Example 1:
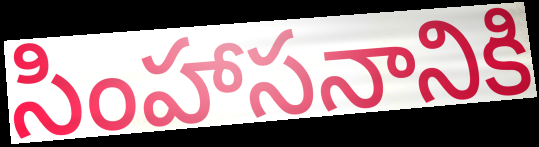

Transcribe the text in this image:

సింహాసనానికి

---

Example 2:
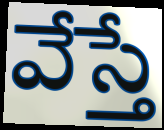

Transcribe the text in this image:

వేస్తే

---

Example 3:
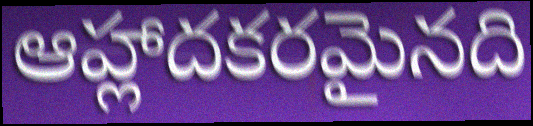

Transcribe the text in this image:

ఆహ్లాదకరమైనది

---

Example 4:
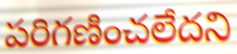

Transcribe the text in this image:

పరిగణించలేదని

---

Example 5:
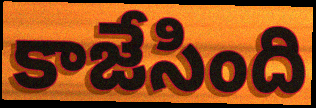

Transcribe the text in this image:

కాజేసింది